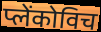
प्लेंकोविच